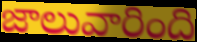
జాలువారింది